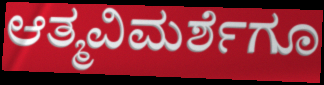
ಆತ್ಮವಿಮರ್ಶೆಗೂ